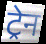
ट्रेन